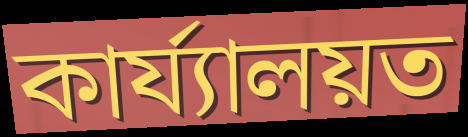
কাৰ্য্যালয়ত